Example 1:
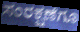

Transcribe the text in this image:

ಸಂರಕ್ಷಣೆಗೂ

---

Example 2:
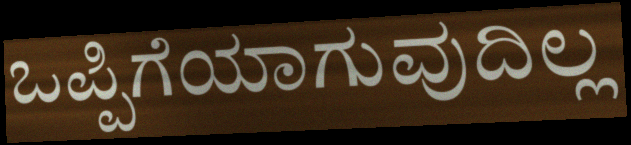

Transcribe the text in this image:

ಒಪ್ಪಿಗೆಯಾಗುವುದಿಲ್ಲ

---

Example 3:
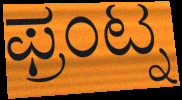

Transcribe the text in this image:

ಫ್ರಂಟ್ನ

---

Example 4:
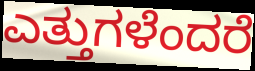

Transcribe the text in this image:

ಎತ್ತುಗಳೆಂದರೆ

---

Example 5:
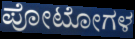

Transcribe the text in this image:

ಪೋಟೋಗಳ